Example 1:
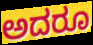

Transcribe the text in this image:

ಅದರೂ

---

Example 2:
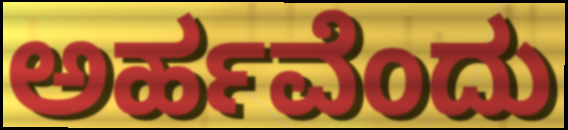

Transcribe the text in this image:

ಅರ್ಹವೆಂದು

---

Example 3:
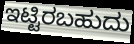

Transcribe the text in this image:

ಇಟ್ಟಿರಬಹುದು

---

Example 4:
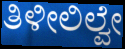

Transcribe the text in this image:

ತಿಳೀಲಿಲ್ವೇ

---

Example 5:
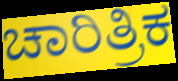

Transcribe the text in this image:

ಚಾರಿತ್ರಿಕ